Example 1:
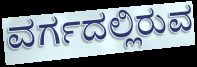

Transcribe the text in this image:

ವರ್ಗದಲ್ಲಿರುವ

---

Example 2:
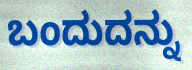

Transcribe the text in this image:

ಬಂದುದನ್ನು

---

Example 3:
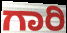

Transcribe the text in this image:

ಗಾರಿ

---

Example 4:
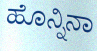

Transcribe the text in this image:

ಹೊನ್ನಿನಾ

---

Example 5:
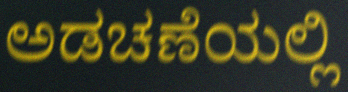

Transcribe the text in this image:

ಅಡಚಣೆಯಲ್ಲಿ